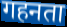
गहनता